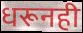
धरूनही